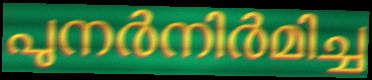
പുനർനിർമിച്ച